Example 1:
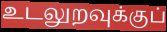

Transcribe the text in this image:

உடலுறவுக்குப்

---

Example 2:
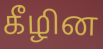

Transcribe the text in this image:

கீழின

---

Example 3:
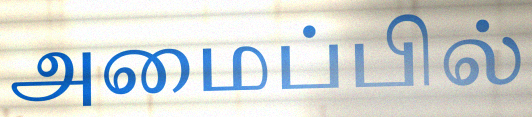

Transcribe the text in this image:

அமைப்பில்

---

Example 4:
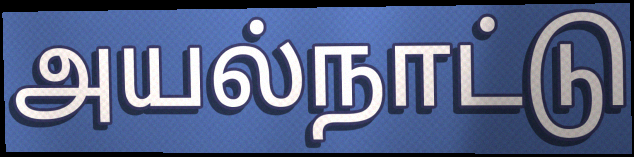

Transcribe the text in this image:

அயல்நாட்டு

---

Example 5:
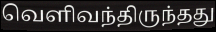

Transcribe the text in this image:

வெளிவந்திருந்தது